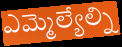
ఎమ్మెల్యేల్ని